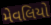
મેવલિયો